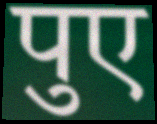
पुए